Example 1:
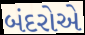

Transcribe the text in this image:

બંદરોએ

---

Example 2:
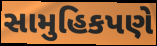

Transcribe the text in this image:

સામુહિકપણે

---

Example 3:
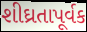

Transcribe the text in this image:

શીઘ્રતાપૂર્વક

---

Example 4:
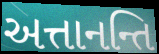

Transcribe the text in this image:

અત્તાનન્તિ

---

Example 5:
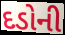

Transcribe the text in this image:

દડોની